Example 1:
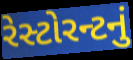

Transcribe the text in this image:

રેસ્ટોરન્ટનું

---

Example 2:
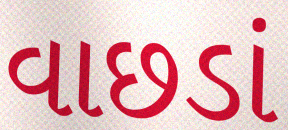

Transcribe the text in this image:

વાછડાં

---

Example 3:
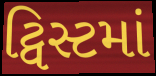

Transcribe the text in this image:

ટ્વિસ્ટમાં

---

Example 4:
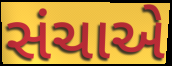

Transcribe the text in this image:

સંચાએ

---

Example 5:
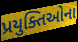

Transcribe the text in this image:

પ્રયુક્તિઓના